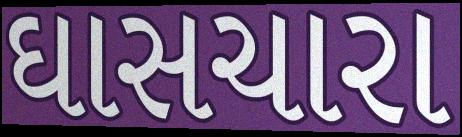
ઘાસચારા